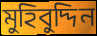
মুহিবুদ্দিন